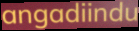
angadiindu